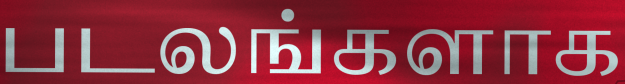
படலங்களாக